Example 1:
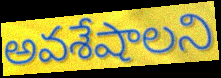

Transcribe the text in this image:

అవశేషాలని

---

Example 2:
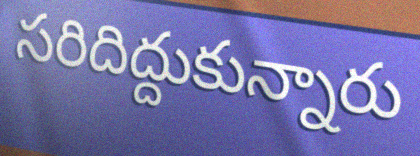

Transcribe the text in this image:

సరిదిద్దుకున్నారు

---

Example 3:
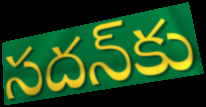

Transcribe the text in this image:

సదన్‌కు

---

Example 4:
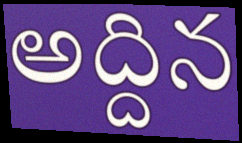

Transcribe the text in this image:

అద్దిన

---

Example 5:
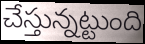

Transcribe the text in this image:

చేస్తున్నట్టుంది